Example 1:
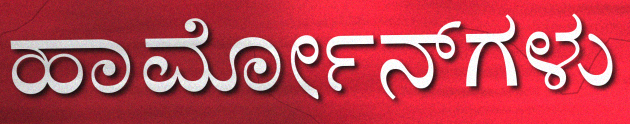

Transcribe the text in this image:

ಹಾರ್ಮೋನ್‌ಗಳು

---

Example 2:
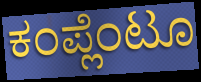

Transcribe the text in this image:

ಕಂಪ್ಲೆಂಟೂ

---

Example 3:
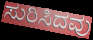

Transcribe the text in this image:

ಸುರಿಸಿದವು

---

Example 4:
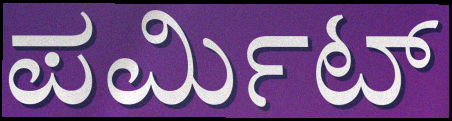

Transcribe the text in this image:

ಪರ್ಮಿಟ್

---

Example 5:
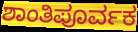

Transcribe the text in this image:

ಶಾಂತಿಪೂರ್ವಕ